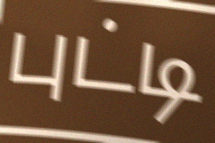
புட்டி